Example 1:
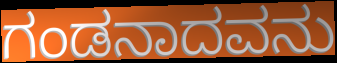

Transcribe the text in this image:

ಗಂಡನಾದವನು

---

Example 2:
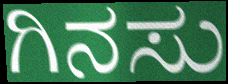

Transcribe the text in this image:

ಗಿನಸು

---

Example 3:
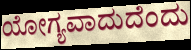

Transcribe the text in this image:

ಯೋಗ್ಯವಾದುದೆಂದು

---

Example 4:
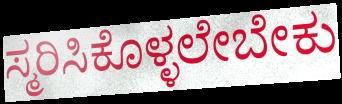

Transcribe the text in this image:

ಸ್ಮರಿಸಿಕೊಳ್ಳಲೇಬೇಕು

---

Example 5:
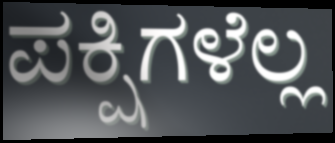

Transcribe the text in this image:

ಪಕ್ಷಿಗಳೆಲ್ಲ